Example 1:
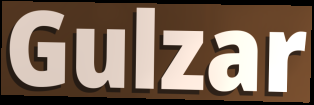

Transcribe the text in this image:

Gulzar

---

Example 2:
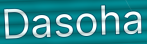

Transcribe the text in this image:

Dasoha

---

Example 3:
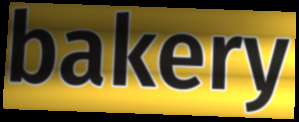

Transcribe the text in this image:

bakery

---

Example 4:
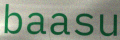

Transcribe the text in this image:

baasu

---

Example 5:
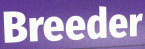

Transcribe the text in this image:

Breeder